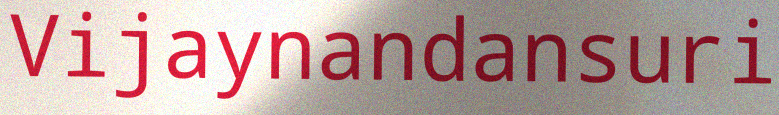
Vijaynandansuri